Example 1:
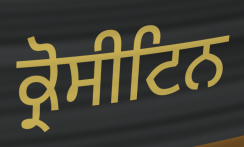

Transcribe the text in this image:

ਕ੍ਰੋਸੀਟਿਨ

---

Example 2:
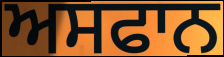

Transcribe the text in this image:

ਅਸਫਾਨ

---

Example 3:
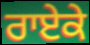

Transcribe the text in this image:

ਰਾਏਕੇ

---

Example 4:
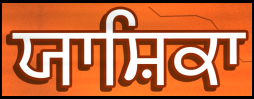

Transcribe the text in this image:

ਯਾਸ਼ਿਕਾ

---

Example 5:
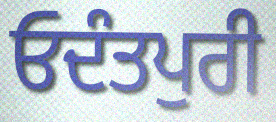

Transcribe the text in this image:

ਓਦੰਤਪੁਰੀ